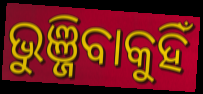
ଭୁଞ୍ଜିବାକୁହିଁ